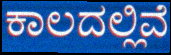
ಕಾಲದಲ್ಲಿವೆ